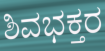
ಶಿವಭಕ್ತರ